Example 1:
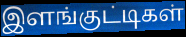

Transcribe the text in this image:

இளங்குட்டிகள்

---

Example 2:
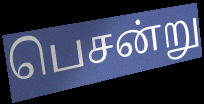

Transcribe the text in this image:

பெசன்று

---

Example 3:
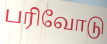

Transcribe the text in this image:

பரிவோடு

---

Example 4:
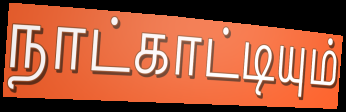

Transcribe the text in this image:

நாட்காட்டியும்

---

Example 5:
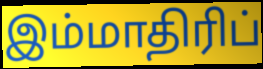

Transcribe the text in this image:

இம்மாதிரிப்